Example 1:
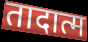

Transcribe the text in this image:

तादात्म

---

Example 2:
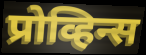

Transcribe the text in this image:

प्रोव्हिन्स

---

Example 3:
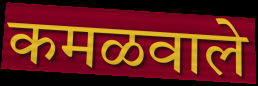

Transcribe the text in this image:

कमळवाले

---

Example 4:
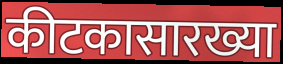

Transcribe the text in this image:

कीटकासारख्या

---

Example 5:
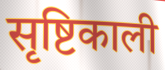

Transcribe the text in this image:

सृष्टिकाली